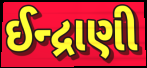
ઈન્દ્રાણી